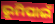
ଭୂମିପାଇଁ